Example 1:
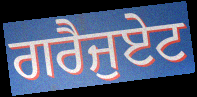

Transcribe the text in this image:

ਗਰੈਜੁਏਟ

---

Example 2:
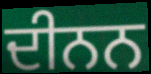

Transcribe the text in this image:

ਦੀਨਨ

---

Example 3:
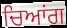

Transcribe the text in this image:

ਚਿਆਂਗ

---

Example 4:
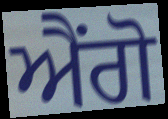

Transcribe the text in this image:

ਐਂਗੋ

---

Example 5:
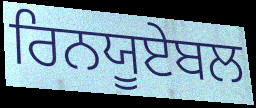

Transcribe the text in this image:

ਰਿਨਯੂਏਬਲ